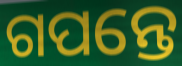
ଗପନ୍ତେ